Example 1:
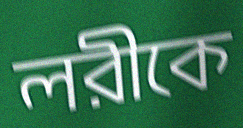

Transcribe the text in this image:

লরীকে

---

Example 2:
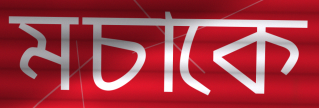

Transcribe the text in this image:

মচাকে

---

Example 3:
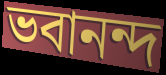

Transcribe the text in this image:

ভবানন্দ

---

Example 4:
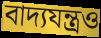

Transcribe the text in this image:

বাদ্যযন্ত্রও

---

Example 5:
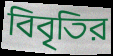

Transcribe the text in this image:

বিবৃতির